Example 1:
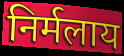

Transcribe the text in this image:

निर्मलाय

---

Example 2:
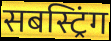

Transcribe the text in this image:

सबस्ट्रिंग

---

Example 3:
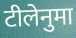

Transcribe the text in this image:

टीलेनुमा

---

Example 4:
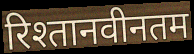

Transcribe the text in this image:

रिश्तानवीनतम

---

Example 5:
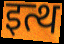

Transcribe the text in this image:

इत्थ